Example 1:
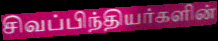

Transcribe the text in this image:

சிவப்பிந்தியர்களின்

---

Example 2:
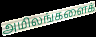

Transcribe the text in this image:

அமிலங்களைக்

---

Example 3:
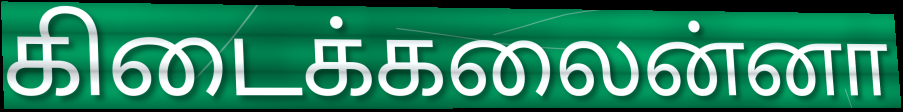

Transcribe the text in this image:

கிடைக்கலைன்னா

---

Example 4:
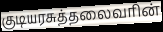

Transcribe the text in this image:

குடியரசுத்தலைவரின்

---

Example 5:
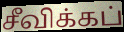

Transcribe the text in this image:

சீவிக்கப்